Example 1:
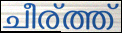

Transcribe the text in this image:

ചീര്ത്ത്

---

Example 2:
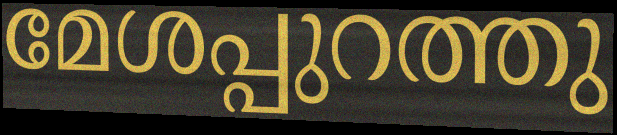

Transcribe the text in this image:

മേശപ്പുറത്തു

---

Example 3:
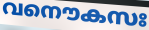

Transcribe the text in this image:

വനൌകസഃ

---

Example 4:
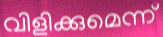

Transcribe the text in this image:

വിളിക്കുമെന്ന്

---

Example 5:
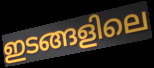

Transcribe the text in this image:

ഇടങ്ങളിലെ